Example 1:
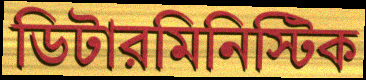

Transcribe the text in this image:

ডিটারমিনিস্টিক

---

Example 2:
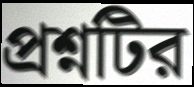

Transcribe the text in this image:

প্রশ্নটির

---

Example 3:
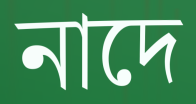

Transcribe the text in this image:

নাদে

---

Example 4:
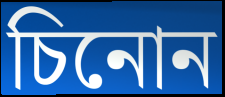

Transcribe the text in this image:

চিনোন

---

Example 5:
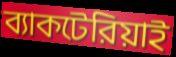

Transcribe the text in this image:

ব্যাকটেরিয়াই